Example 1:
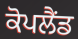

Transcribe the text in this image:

ਕੋਪਲੈਂਡ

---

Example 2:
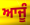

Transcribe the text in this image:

ਆਜੂੰ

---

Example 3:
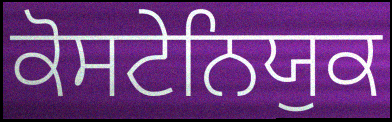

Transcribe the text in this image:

ਕੋਸਟੇਨਿਯੁਕ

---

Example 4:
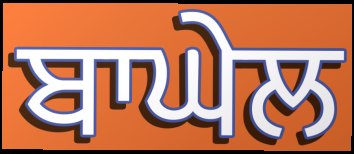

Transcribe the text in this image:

ਬਾਘੇਲ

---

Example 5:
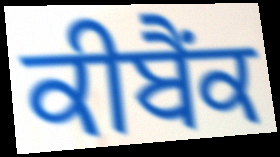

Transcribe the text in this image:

ਕੀਬੈਂਕ